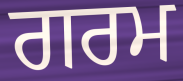
ਗਰਮ